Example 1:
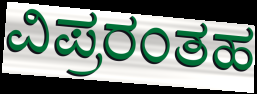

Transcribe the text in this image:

ವಿಪ್ರರಂತಹ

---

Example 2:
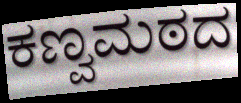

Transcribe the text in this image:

ಕಣ್ವಮಠದ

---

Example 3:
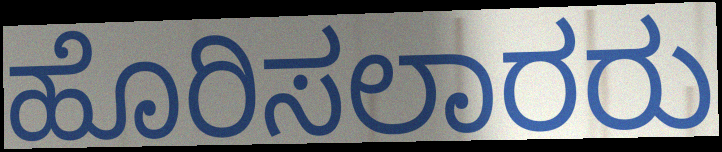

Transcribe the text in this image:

ಹೊರಿಸಲಾರರು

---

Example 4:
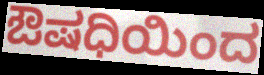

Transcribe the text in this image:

ಔಷಧಿಯಿಂದ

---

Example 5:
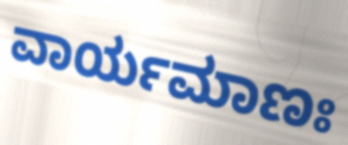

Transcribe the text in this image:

ವಾರ್ಯಮಾಣಃ